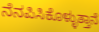
ನೆನಪಿಸಿಕೊಳ್ಳುತ್ತಾನೆ